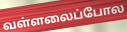
வள்ளலைப்போல